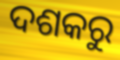
ଦଶକରୁ